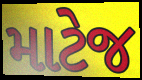
માટેજ